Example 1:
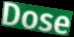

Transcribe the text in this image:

Dose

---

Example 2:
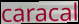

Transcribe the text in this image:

caracal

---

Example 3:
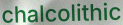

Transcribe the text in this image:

chalcolithic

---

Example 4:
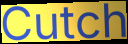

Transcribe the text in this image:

Cutch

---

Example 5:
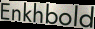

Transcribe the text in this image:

Enkhbold